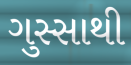
ગુસ્સાથી